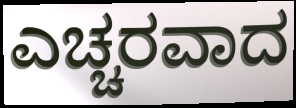
ಎಚ್ಚರವಾದ